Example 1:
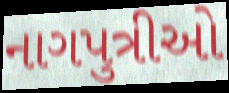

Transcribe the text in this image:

નાગપુત્રીઓ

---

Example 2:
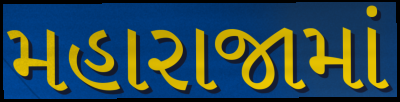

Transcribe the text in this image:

મહારાજામાં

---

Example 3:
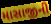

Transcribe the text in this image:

માસાજીની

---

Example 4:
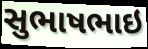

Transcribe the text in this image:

સુભાષભાઇ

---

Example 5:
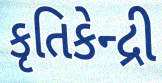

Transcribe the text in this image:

કૃતિકેન્દ્રી